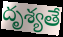
దృశ్యతే